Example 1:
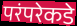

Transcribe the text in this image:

परंपरेकडे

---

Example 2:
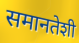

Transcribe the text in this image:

समानतेशी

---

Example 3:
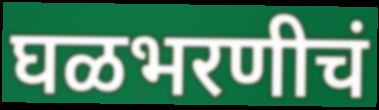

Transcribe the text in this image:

घळभरणीचं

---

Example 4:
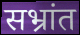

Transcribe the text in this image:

सभ्रांत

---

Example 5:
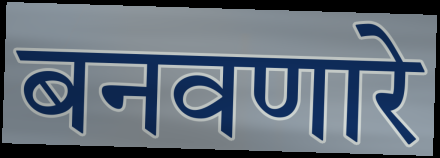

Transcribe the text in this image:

बनवणारे